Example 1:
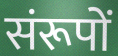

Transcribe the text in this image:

संरूपों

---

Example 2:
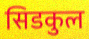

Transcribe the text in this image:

सिडकुल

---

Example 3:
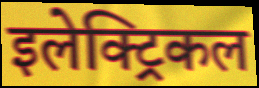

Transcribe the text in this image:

इलेक्ट्रिकल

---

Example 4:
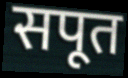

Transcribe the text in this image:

सपूत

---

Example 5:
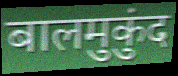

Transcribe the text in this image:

बालमुकुंद